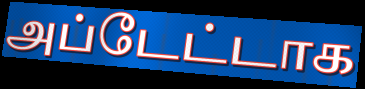
அப்டேட்டாக